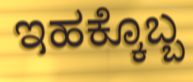
ಇಹಕ್ಕೊಬ್ಬ